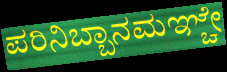
ಪರಿನಿಬ್ಬಾನಮಞ್ಚೇ